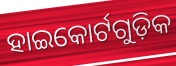
ହାଇକୋର୍ଟଗୁଡ଼ିକ